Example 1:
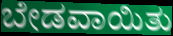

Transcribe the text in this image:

ಬೇಡವಾಯಿತು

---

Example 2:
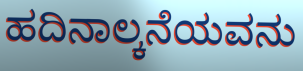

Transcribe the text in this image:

ಹದಿನಾಲ್ಕನೆಯವನು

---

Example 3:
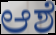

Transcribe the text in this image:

ಆಶೆ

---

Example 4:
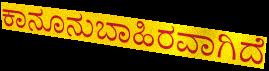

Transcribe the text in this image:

ಕಾನೂನುಬಾಹಿರವಾಗಿದೆ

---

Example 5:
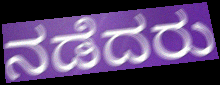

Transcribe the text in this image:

ನಡೆದರು